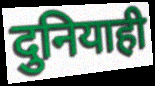
दुनियाही